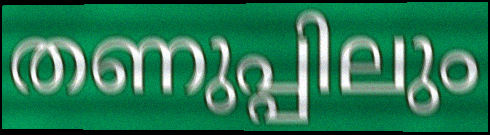
തണുപ്പിലും